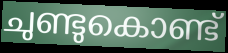
ചുണ്ടുകൊണ്ട്